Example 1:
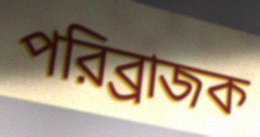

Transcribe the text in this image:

পরিব্রাজক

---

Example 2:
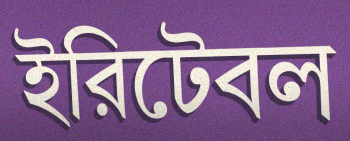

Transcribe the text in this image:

ইরিটেবল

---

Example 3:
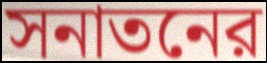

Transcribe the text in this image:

সনাতনের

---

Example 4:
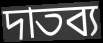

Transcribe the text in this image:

দাতব্য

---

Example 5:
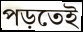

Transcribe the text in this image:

পড়তেই